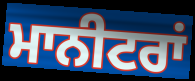
ਮਾਨੀਟਰਾਂ